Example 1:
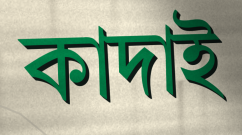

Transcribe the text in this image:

কাদাই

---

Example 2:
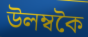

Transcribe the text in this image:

উলম্বকৈ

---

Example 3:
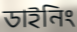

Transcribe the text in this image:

ডাইনিং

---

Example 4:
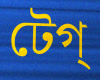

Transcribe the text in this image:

টেগ্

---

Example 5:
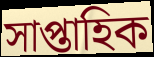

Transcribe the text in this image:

সাপ্তাহিক